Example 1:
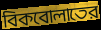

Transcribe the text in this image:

বিকবোলাতের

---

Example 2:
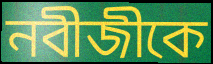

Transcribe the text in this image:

নবীজীকে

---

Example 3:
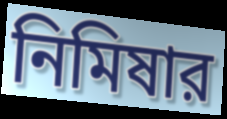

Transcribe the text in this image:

নিমিষার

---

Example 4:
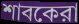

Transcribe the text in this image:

শাবকেরা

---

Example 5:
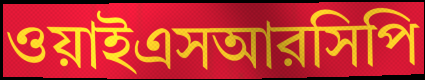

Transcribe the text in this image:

ওয়াইএসআরসিপি